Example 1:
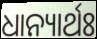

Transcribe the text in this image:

ଧାନ୍ୟାର୍ଥଃ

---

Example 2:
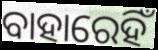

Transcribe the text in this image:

ବାହାରେହିଁ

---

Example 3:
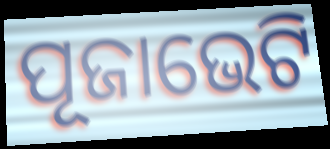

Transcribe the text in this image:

ପୂଜାଭେଟି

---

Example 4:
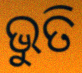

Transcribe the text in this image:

ଭୁତି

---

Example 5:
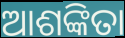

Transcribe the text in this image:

ଆଶଙ୍କିତା